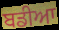
ਬਡੀਆ